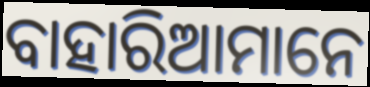
ବାହାରିଆମାନେ